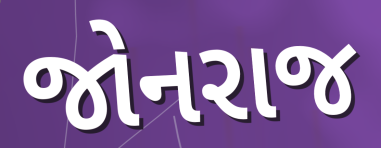
જોનરાજ